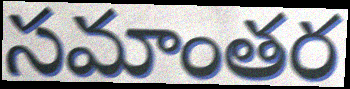
సమాంతర